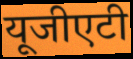
यूजीएटी